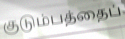
குடும்பத்தைப்